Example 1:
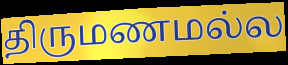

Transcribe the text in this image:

திருமணமல்ல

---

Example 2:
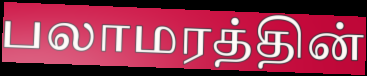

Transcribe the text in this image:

பலாமரத்தின்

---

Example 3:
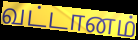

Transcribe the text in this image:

வட்டானம்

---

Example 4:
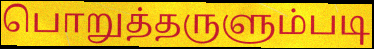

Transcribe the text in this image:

பொறுத்தருளும்படி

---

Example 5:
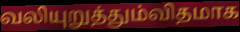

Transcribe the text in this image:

வலியுறுத்தும்விதமாக